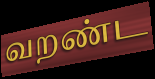
வறண்ட